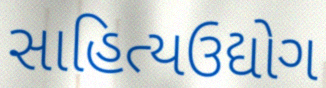
સાહિત્યઉદ્યોગ